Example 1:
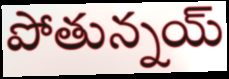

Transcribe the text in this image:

పోతున్నయ్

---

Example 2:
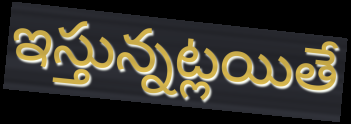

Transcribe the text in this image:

ఇస్తున్నట్లయితే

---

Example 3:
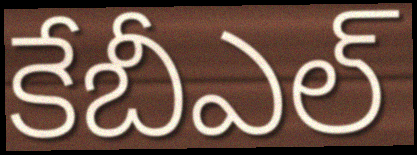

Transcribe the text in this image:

కేబీఎల్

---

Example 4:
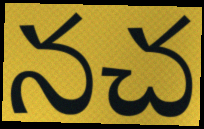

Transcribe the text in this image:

నచ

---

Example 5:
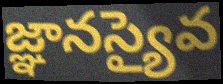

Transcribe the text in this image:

జ్ఞానస్యైవ